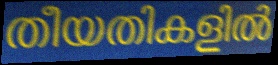
തീയതികളിൽ